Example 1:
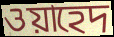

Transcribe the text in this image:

ওয়াহেদ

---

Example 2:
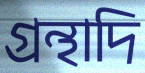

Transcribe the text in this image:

গ্রন্থাদি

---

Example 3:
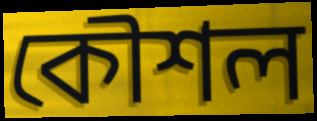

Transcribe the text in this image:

কৌশল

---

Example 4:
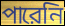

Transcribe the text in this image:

পারেনি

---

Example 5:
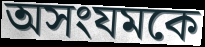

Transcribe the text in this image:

অসংযমকে